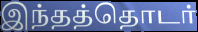
இந்தத்தொடர்